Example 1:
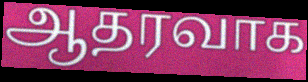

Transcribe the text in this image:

ஆதரவாக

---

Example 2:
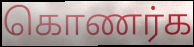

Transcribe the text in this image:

கொணர்க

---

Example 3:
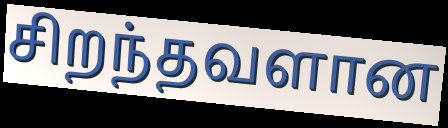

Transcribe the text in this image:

சிறந்தவளான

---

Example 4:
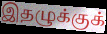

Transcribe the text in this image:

இதழுக்குக்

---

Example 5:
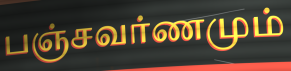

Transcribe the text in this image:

பஞ்சவர்ணமும்